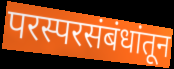
परस्परसंबंधांतून